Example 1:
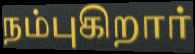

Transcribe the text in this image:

நம்புகிறார்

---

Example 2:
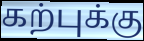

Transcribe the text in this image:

கற்புக்கு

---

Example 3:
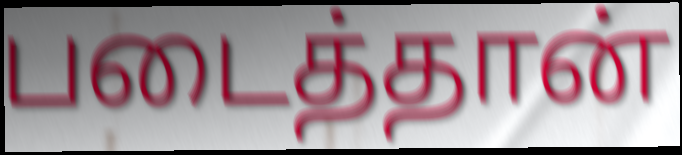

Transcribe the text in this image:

படைத்தான்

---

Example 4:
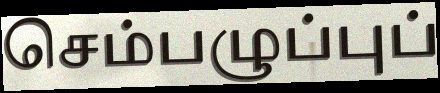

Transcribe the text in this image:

செம்பழுப்புப்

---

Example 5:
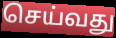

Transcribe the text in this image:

செய்வது